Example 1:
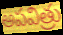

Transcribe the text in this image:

అపవిత్రు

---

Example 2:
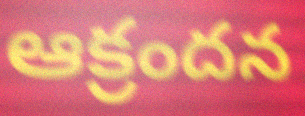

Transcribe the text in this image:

ఆక్రందన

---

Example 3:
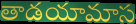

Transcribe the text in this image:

తాడయామాస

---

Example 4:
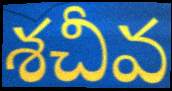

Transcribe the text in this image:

శచీవ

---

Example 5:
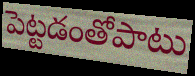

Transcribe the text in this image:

పెట్టడంతోపాటు